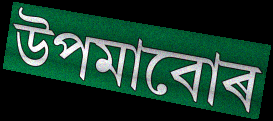
উপমাবোৰ